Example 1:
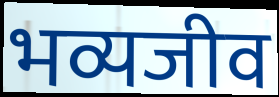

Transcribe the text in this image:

भव्यजीव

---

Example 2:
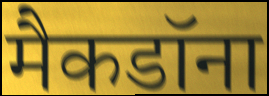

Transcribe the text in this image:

मैकडॉना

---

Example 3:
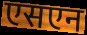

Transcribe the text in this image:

एसएन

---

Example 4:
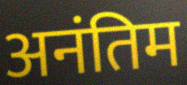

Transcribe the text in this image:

अनंतिम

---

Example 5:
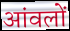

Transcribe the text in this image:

आंवलों